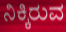
ನಿಕ್ಕಿರುವ